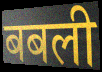
बबली